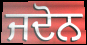
ਜਦੋਨ